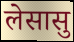
लेसासु